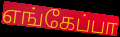
எங்கேப்பா